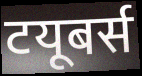
टयूबर्स